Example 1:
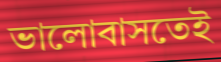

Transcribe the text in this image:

ভালোবাসতেই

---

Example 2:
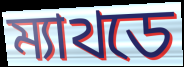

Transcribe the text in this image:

ম্যাথডে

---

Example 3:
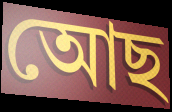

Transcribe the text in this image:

আেছ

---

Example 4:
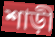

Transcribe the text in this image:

শাড়ী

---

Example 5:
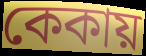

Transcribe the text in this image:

কেকায়